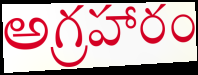
అగ్రహారం